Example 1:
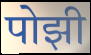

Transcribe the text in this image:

पोझी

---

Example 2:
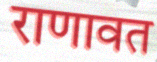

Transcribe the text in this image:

राणावत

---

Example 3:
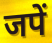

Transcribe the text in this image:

जपें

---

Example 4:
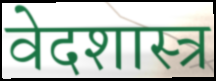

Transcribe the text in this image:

वेदशास्त्र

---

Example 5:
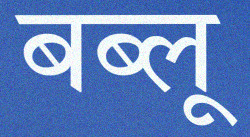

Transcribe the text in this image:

बब्लू